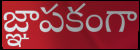
జ్ఞాపకంగా